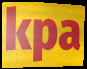
kpa